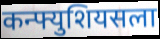
कन्फ्युशियसला